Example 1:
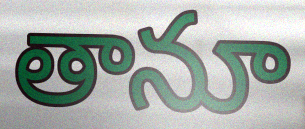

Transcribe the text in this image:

తానూ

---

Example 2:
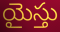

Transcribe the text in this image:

యైస్తు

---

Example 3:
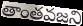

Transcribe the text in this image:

తాంతవజని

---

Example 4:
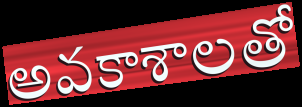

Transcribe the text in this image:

అవకాశాలతో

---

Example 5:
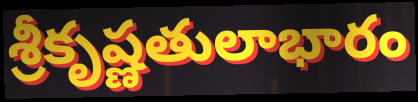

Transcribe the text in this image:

శ్రీకృష్ణతులాభారం